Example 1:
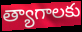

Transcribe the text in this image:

త్యాగాలకు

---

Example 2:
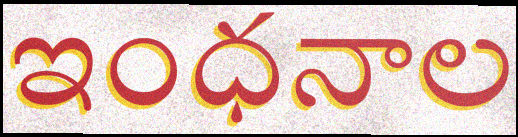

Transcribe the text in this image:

ఇంధనాల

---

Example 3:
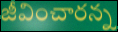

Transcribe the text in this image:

జీవించారన్న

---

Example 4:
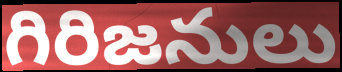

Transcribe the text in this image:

గిరిజనులు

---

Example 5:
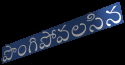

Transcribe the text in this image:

పొంగిపోవలసిన